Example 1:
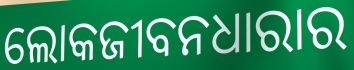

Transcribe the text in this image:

ଲୋକଜୀବନଧାରାର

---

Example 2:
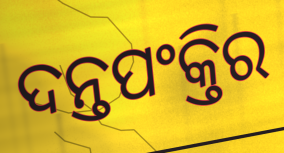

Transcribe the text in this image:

ଦନ୍ତପଂକ୍ତିର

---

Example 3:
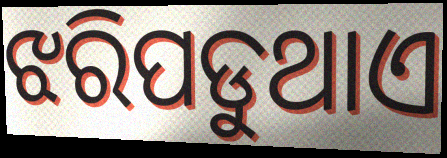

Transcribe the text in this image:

ଝରିପଡୁଥାଏ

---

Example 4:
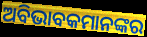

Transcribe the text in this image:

ଅବିଭାବକମାନଙ୍କର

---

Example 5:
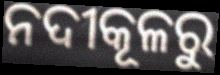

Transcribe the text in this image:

ନଦୀକୂଳରୁ